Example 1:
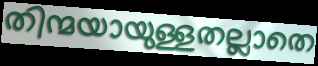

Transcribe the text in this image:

തിന്മയായുള്ളതല്ലാതെ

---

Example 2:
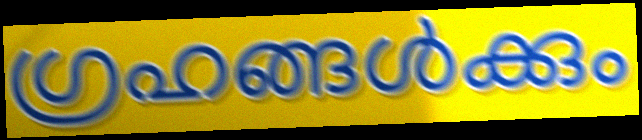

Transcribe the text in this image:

ഗ്രഹങ്ങൾക്കും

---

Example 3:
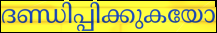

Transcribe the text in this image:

ദണ്ഡിപ്പിക്കുകയോ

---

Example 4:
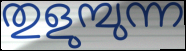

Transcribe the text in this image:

തുളുമ്പുന്ന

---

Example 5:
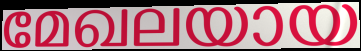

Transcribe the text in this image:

മേഖലയായ